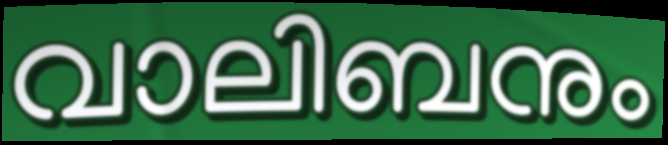
വാലിബനും